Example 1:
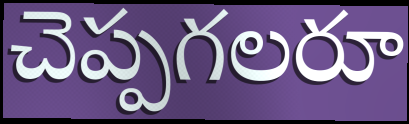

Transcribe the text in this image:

చెప్పగలరూ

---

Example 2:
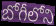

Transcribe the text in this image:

బోగీలోని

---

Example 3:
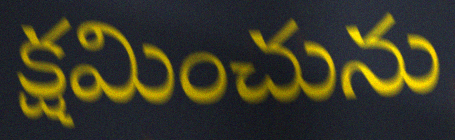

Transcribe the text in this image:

క్షమించును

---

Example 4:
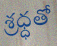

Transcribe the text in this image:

శ్రధ్ధతో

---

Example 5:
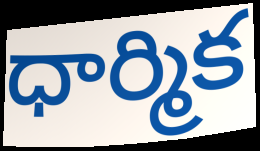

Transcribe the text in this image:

ధార్మిక